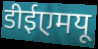
डीईएमयू